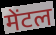
मेंटल